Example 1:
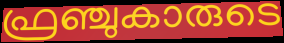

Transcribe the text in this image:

ഫ്രഞ്ചുകാരുടെ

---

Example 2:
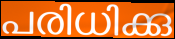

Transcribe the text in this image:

പരിധിക്കു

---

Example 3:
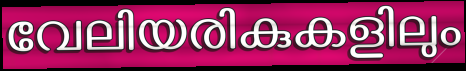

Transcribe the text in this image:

വേലിയരികുകളിലും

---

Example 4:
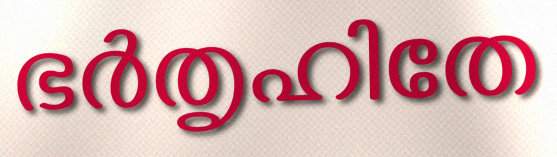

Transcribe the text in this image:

ഭർതൃഹിതേ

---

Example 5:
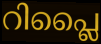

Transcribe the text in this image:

റിപ്ലൈ